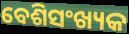
ବେଶିସଂଖ୍ୟକ